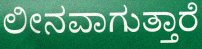
ಲೀನವಾಗುತ್ತಾರೆ